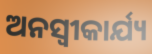
ଅନସ୍ବୀକାର୍ଯ୍ୟ